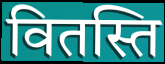
वितस्ति